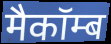
मैकॉम्ब